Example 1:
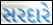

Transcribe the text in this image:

સરદારે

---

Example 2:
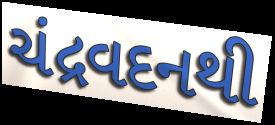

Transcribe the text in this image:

ચંદ્રવદનથી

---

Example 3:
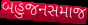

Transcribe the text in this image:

બહુજનસમાજ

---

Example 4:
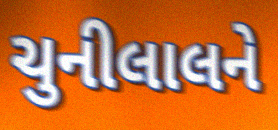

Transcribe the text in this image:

ચુનીલાલને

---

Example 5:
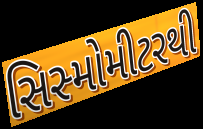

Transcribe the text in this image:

સિસ્મોમીટરથી